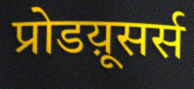
प्रोडय़ूसर्स